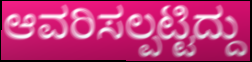
ಆವರಿಸಲ್ಪಟ್ಟಿದ್ದು